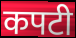
कपटी